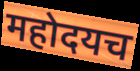
महोदयच